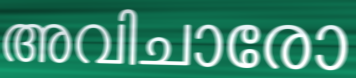
അവിചാരോ